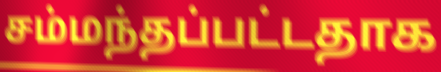
சம்மந்தப்பட்டதாக